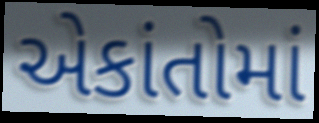
એકાંતોમાં